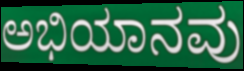
ಅಭಿಯಾನವು